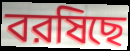
বরষিছে